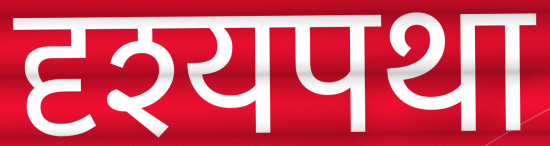
दृश्यपथा